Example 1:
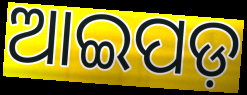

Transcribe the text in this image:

ଆଇପଡ଼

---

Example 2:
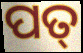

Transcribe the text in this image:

ପତ୍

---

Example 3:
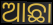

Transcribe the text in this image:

ଆଛା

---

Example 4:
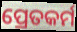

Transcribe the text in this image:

ପ୍ରେତକର୍ମ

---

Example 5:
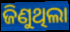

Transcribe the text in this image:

ଜିଣୁଥିଲା